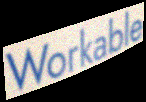
Workable